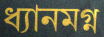
ধ্যানমগ্ন